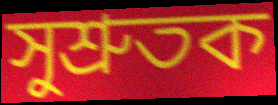
সুশ্ৰুতক